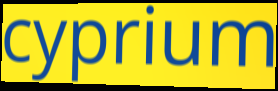
cyprium